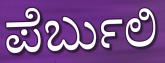
ಪೆರ್ಬುಲಿ